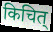
किचित्